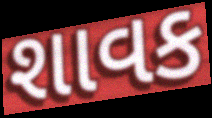
શાવક